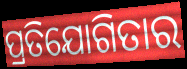
ପ୍ରତିଯୋଗିତାର